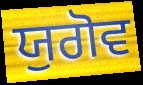
ਯੁਗੋਵ